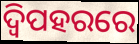
ଦ୍ୱିପହରରେ